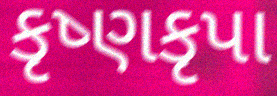
કૃષ્ણકૃપા